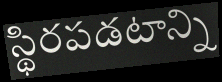
స్థిరపడటాన్ని